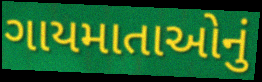
ગાયમાતાઓનું